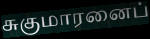
சுகுமாரனைப்